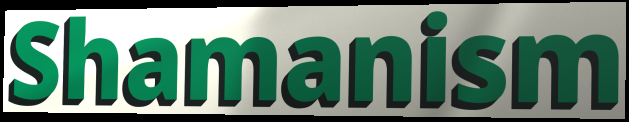
Shamanism